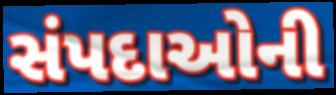
સંપદાઓની